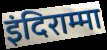
इंदिराम्मा